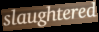
slaughtered